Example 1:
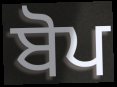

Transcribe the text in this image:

ਬੋਪ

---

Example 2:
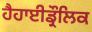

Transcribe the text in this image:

ਹੈਹਾਈਡ੍ਰੌਲਿਕ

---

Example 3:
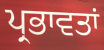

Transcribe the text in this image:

ਪ੍ਰਭਾਵਤਾਂ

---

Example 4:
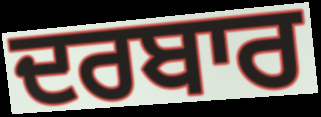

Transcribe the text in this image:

ਦਰਬਾਰ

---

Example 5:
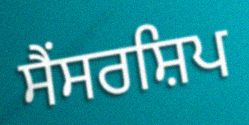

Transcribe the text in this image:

ਸੈਂਸਰਸ਼ਿਪ